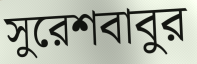
সুরেশবাবুর